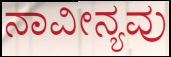
ನಾವೀನ್ಯವು